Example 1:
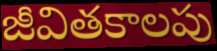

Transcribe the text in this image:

జీవితకాలపు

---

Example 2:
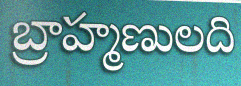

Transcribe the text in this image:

బ్రాహ్మణులది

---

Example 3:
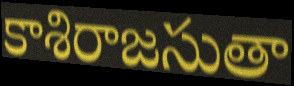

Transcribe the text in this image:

కాశిరాజసుతా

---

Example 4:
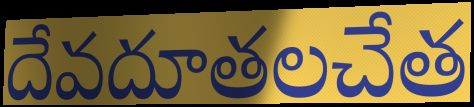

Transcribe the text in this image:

దేవదూతలచేత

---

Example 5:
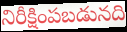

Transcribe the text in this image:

నిరీక్షింపబడునది